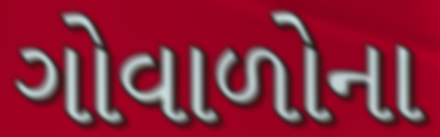
ગોવાળોના